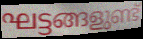
ഘട്ടങ്ങളുണ്ട്